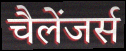
चैलेंजर्स